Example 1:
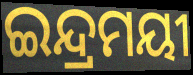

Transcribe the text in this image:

ଇନ୍ଦ୍ରମୟୀ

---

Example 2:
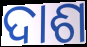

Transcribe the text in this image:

ଦାଶ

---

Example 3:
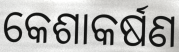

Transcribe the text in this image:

କେଶାକର୍ଷଣ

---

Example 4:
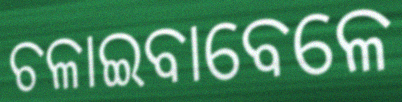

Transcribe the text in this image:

ଚଳାଇବାବେଳେ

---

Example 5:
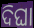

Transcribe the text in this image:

ଦିଘା